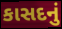
કાસદનું